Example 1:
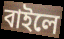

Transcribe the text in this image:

বাইলে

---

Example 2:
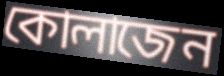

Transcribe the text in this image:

কোলাজেন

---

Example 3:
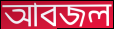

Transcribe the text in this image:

আবজল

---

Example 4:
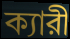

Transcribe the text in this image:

ক্যারী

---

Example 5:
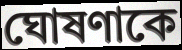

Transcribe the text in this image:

ঘোষণাকে